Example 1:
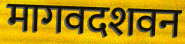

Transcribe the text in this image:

मागवदशवन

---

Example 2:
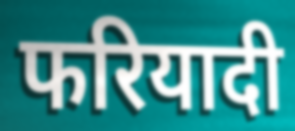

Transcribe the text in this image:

फरियादी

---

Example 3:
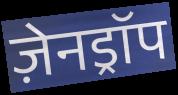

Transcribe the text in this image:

ज़ेनड्रॉप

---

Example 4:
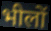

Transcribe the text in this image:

भीलों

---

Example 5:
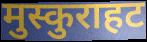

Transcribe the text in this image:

मुस्कुराहट